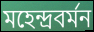
মহেন্দ্রবর্মন